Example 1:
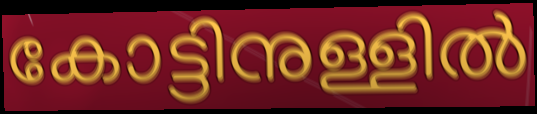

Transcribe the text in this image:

കോട്ടിനുള്ളിൽ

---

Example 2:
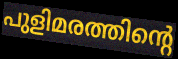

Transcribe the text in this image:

പുളിമരത്തിന്റെ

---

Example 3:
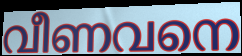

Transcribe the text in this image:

വീണവനെ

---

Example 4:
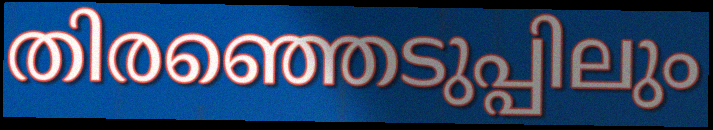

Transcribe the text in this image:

തിരഞ്ഞെടുപ്പിലും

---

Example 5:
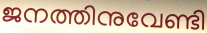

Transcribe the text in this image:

ജനത്തിനുവേണ്ടി